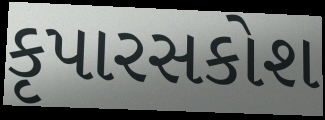
કૃપારસકોશ